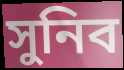
সুনিব